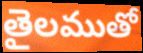
తైలముతో